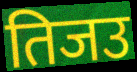
तिजउ